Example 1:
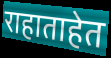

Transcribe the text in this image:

राहाताहेत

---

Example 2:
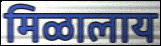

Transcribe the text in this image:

मिळालाय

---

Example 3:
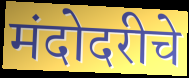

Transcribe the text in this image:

मंदोदरीचे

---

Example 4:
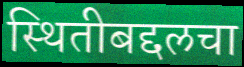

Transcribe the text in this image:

स्थितीबद्दलचा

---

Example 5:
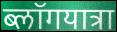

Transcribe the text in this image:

ब्लॉगयात्रा